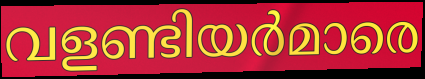
വളണ്ടിയർമാരെ